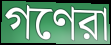
গণেরা